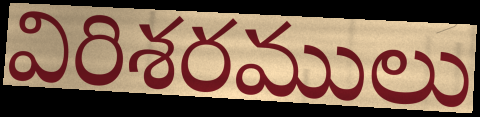
విరిశరములు